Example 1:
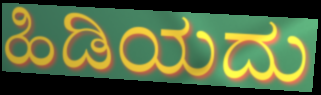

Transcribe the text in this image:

ಹಿಡಿಯದು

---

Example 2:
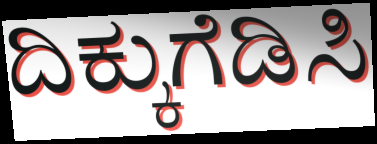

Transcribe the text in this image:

ದಿಕ್ಕುಗೆಡಿಸಿ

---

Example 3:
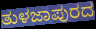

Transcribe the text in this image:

ತುಳಜಾಪುರದ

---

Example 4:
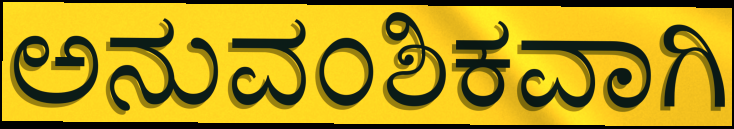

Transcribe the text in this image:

ಅನುವಂಶಿಕವಾಗಿ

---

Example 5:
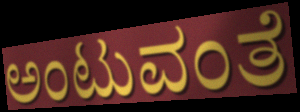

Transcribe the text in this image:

ಅಂಟುವಂತೆ